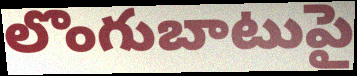
లొంగుబాటుపై